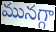
మునగ్గా